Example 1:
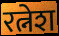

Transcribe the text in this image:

रत्नेश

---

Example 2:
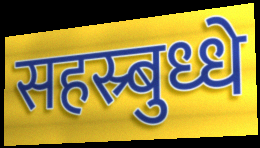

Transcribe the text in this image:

सहस्र्बुध्धे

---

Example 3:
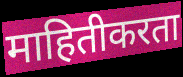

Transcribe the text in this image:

माहितीकरता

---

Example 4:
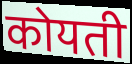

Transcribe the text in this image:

कोयती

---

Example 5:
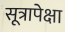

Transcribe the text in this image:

सूत्रापेक्षा